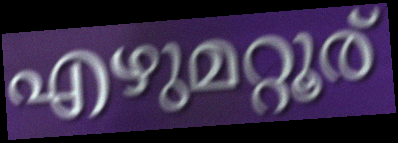
എഴുമറ്റൂര്